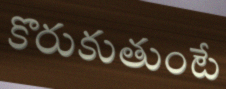
కొరుకుతుంటే